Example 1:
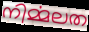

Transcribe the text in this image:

നിൎമ്മലത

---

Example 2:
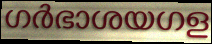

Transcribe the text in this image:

ഗർഭാശയഗള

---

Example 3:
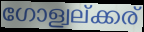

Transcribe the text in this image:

ഗോള്വല്ക്കര്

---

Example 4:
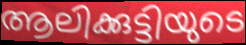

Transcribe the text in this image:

ആലിക്കുട്ടിയുടെ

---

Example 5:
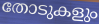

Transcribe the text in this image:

തോടുകളും